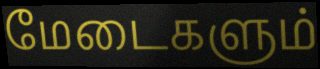
மேடைகளும்